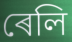
ৰেলি